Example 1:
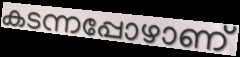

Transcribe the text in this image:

കടന്നപ്പോഴാണ്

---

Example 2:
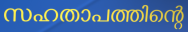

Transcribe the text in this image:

സഹതാപത്തിന്റെ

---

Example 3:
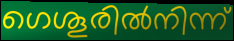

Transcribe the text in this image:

ഗെശൂരിൽനിന്ന്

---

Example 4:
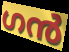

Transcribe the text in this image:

ഗൻ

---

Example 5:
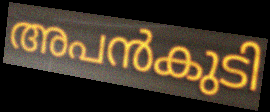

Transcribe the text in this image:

അപൻകുടി